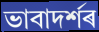
ভাবাদৰ্শৰ